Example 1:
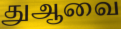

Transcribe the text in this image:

துஆவை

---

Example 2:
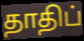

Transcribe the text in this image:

தாதிப்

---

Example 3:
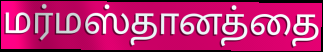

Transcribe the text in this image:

மர்மஸ்தானத்தை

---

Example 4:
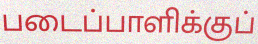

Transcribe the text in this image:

படைப்பாளிக்குப்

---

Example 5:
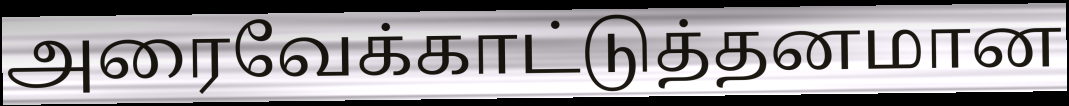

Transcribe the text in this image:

அரைவேக்காட்டுத்தனமான